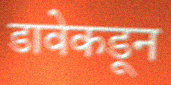
डावेकडून